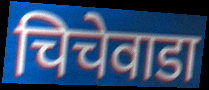
चिचेवाडा